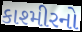
કાશ્મીરનો